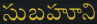
సుబహూని